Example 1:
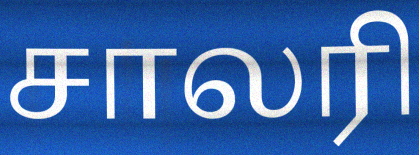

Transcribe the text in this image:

சாலரி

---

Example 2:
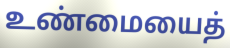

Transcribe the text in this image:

உண்மையைத்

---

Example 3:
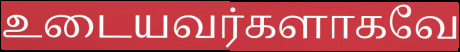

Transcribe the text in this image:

உடையவர்களாகவே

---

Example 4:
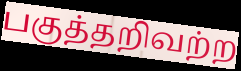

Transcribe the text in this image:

பகுத்தறிவற்ற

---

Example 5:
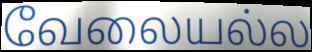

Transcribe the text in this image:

வேலையல்ல